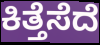
ಕಿತ್ತೆಸೆದೆ